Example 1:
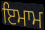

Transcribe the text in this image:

ਇਮਾਮ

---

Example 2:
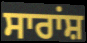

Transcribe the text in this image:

ਸਾਰਾਂਸ਼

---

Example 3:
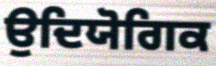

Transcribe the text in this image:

ਉਦਿਯੋਗਿਕ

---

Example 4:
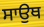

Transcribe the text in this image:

ਸਾਉਥ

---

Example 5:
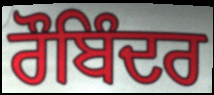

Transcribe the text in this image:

ਰੌਬਿੰਦਰ